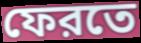
ফেরতে